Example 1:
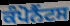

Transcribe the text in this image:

ਕੰਪੋਨੈਂਟਸ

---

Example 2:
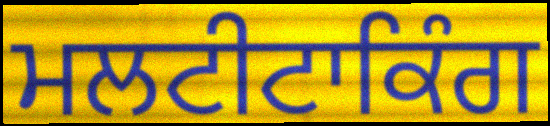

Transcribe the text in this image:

ਮਲਟੀਟਾਕਿੰਗ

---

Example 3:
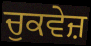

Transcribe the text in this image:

ਚੁਕਵੇਜ਼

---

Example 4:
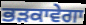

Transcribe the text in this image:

ਭੜਕਾਵੇਗਾ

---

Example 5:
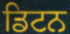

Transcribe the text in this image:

ਡਿਟਨ